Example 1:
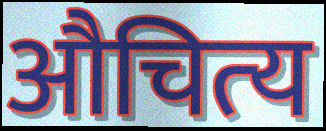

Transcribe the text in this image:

औचित्‍य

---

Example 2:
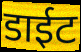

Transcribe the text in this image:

डाईट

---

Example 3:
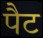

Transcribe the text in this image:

पैट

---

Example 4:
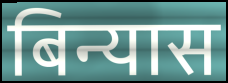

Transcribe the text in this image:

बिन्यास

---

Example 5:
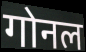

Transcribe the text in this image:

गोनल